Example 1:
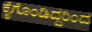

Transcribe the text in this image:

ಕೈಗೊಂಡಿದ್ದರಿಂದ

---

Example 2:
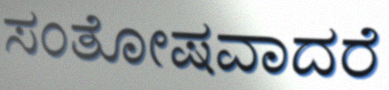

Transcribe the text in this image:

ಸಂತೋಷವಾದರೆ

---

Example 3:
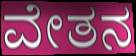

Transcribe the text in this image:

ವೇತನ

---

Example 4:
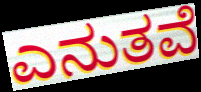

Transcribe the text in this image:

ಎನುತವೆ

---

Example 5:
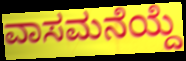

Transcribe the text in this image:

ವಾಸಮನೆಯ್ದೆ